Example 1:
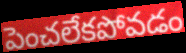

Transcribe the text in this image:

పెంచలేకపోవడం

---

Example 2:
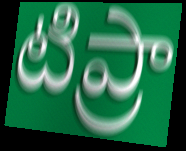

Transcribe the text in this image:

టిప్రా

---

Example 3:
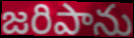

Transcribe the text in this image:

జరిపాను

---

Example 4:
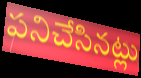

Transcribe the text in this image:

పనిచేసినట్లు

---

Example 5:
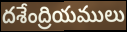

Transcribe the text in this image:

దశేంద్రియములు